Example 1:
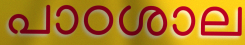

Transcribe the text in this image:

പാഠശാല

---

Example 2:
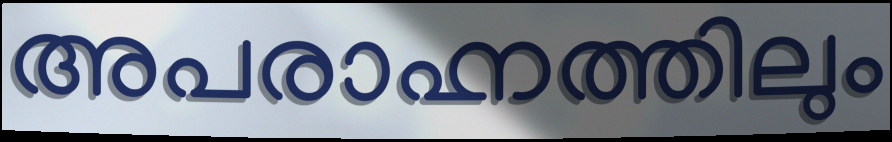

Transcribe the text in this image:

അപരാഹ്നത്തിലും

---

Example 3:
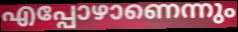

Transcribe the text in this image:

എപ്പോഴാണെന്നും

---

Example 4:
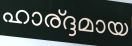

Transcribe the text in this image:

ഹാര്ദ്ദമായ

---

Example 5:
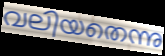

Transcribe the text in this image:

വലിയതെന്നു